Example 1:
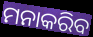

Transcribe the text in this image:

ମନାକରିବ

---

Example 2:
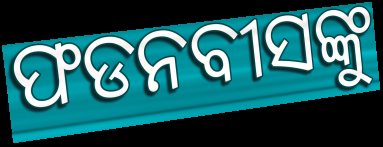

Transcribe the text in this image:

ଫଡନବୀସଙ୍କୁ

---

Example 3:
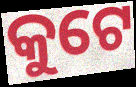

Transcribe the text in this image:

କୁଟେ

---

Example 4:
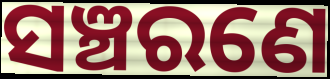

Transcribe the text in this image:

ସଞ୍ଚରଣେ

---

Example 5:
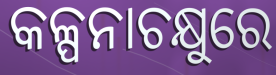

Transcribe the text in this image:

କଳ୍ପନାଚକ୍ଷୁରେ